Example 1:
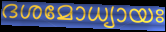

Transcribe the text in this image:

ദശമോധ്യായഃ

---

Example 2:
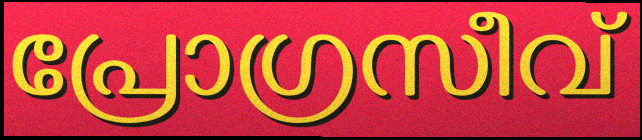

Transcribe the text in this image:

പ്രോഗ്രസീവ്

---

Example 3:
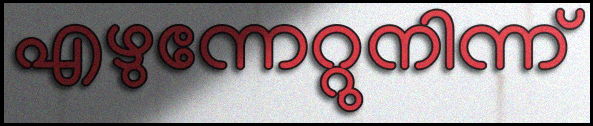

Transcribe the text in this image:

എഴുന്നേറ്റുനിന്ന്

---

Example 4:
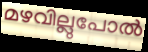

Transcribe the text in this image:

മഴവില്ലുപോൽ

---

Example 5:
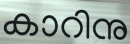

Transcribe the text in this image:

കാറിനു